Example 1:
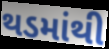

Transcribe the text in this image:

થડમાંથી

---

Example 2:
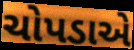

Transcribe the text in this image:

ચોપડાએ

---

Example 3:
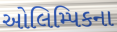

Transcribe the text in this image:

ઓલિમ્પિકના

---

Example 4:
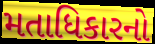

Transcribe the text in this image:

મતાધિકારનો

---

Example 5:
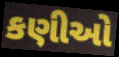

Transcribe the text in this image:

કણીઓ